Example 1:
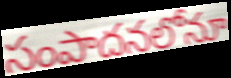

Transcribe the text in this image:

సంపాదనలోనూ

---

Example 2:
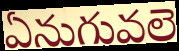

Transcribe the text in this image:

ఏనుగువలె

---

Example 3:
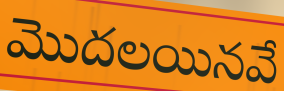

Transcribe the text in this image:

మొదలయినవే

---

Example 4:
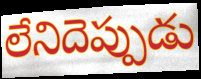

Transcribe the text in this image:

లేనిదెప్పుడు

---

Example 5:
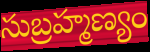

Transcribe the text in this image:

సుబ్రహ్మణ్యం